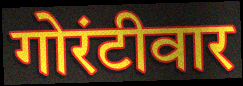
गोरंटीवार